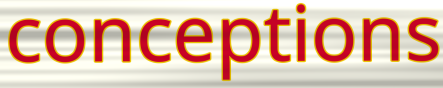
conceptions